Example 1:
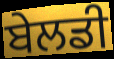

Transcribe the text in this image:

ਬੇਲਡੀ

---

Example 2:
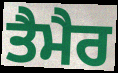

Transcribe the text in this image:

ਤੈਮੈਰ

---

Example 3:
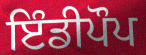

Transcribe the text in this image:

ਇੰਡੀਪੌਪ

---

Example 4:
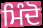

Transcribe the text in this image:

ਮਿੰਦੋ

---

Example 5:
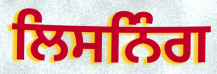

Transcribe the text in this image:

ਲਿਸਨਿੰਗ